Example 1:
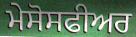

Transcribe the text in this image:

ਮੇਸੋਸਫੀਅਰ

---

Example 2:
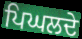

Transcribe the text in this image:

ਪਿਘਲਦੇ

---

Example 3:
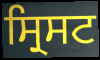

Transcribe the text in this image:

ਸ੍ਰਿਸਟ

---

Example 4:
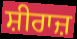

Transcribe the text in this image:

ਸ਼ੀਰਾਜ਼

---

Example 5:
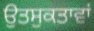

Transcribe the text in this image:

ਉਤਸੁਕਤਾਵਾਂ